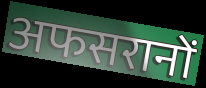
अफसरानों